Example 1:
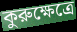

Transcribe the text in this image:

কুরুক্ষেত্রে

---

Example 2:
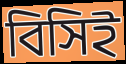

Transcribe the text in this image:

বিসিই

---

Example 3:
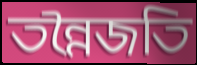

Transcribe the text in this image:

তন্নৈজতি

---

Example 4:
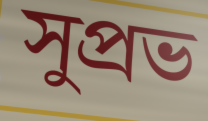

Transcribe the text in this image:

সুপ্রভ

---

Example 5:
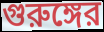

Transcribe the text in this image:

গুরুঙ্গের